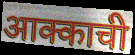
आक्काची